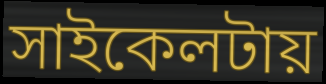
সাইকেলটায়